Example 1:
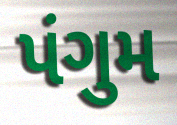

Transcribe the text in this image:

પંગુમ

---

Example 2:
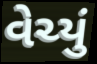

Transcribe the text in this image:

વેચ્યું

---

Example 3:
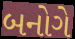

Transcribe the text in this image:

બનોગે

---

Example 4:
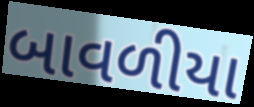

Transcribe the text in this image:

બાવળીયા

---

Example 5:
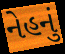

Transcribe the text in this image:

નેહનું